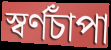
স্বর্ণচাঁপা